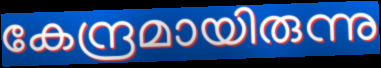
കേന്ദ്രമായിരുന്നു